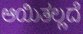
ಆಯಿತಲ್ಲದೆ